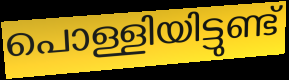
പൊള്ളിയിട്ടുണ്ട്